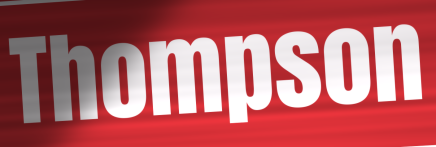
Thompson